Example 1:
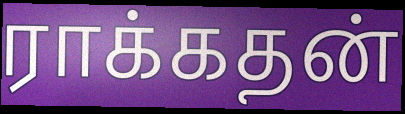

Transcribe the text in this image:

ராக்கதன்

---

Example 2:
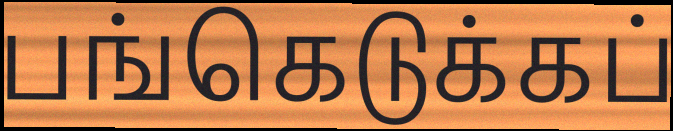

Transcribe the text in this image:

பங்கெடுக்கப்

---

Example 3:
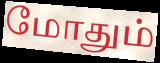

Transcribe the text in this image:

மோதும்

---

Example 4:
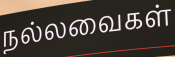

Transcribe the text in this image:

நல்லவைகள்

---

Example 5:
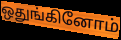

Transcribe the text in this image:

ஒதுங்கினோம்